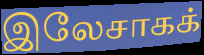
இலேசாகக்